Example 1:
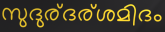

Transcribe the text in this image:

സുദുര്ദര്ശമിദം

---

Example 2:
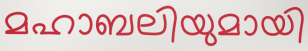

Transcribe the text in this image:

മഹാബലിയുമായി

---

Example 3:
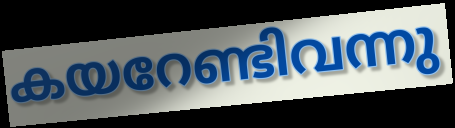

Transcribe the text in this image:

കയറേണ്ടിവന്നു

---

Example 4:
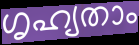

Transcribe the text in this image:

ഗൃഹ്യതാം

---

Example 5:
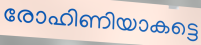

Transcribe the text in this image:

രോഹിണിയാകട്ടെ